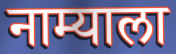
नाम्याला